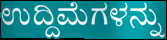
ಉದ್ದಿಮೆಗಳನ್ನು